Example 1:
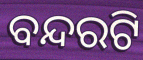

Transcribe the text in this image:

ବନ୍ଦରଟି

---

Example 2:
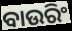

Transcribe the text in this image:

ବାଉରିଂ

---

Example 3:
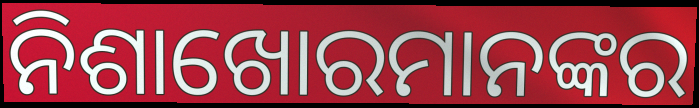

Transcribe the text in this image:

ନିଶାଖୋରମାନଙ୍କର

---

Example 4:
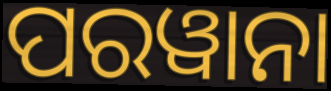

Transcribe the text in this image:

ପରୱାନା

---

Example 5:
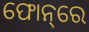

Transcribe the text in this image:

ଫୋନ୍‌ରେ